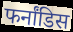
फर्नांडिस